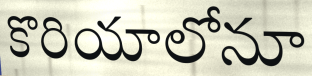
కొరియాలోనూ